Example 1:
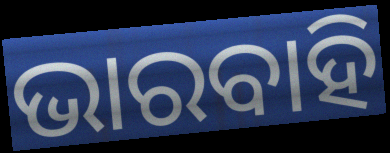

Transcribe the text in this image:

ଭାରବାହି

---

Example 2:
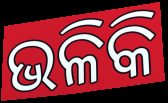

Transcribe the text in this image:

ଭଳିକି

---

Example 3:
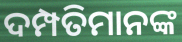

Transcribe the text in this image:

ଦମ୍ପତିମାନଙ୍କ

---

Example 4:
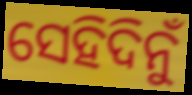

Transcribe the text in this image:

ସେହିଦିନୁଁ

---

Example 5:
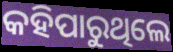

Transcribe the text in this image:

କହିପାରୁଥିଲେ